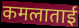
कमलाताई